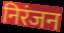
निरंजन